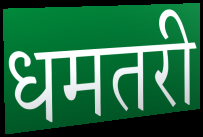
धमतरी